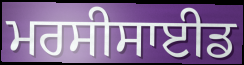
ਮਰਸੀਸਾਈਡ